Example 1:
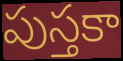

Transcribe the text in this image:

పుస్తకా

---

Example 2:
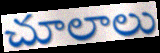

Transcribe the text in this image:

చూలాలు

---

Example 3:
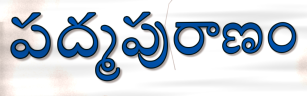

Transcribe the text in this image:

పద్మపురాణం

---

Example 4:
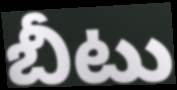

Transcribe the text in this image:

బీటు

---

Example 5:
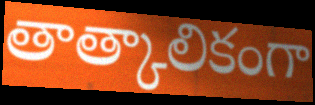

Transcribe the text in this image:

తాత్కాలికంగా